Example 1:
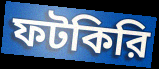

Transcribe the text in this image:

ফটকিরি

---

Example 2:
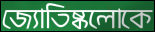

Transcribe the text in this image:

জ্যোতিষ্কলোকে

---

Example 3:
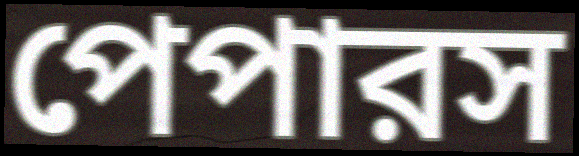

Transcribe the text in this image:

পেপারস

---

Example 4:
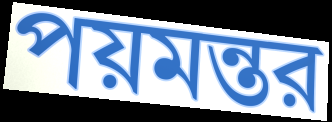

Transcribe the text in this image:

পয়মন্তর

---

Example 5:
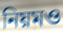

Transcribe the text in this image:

নিয়মও